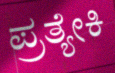
ಪ್ರತ್ಯೇಕಿ